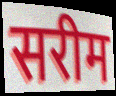
सरीम